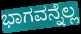
ಭಾಗವನ್ನೆಲ್ಲ